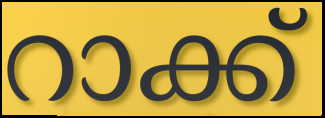
റാക്ക്